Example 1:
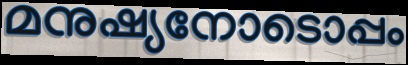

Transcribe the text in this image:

മനുഷ്യനോടൊപ്പം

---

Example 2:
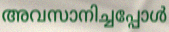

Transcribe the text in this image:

അവസാനിച്ചപ്പോൾ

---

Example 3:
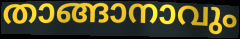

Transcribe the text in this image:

താങ്ങാനാവും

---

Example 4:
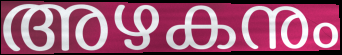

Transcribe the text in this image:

അഴകനും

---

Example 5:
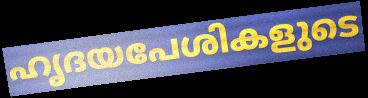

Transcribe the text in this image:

ഹൃദയപേശികളുടെ